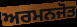
ਅਰਮਨਜੋਤ